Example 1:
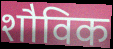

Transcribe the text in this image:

शौविक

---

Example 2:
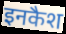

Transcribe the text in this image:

इनकैश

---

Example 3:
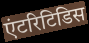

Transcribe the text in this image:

एंटरिटिडिस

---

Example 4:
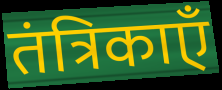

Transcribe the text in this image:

तंत्रिकाएँ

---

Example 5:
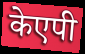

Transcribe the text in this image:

केएपी